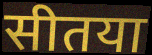
सीतया